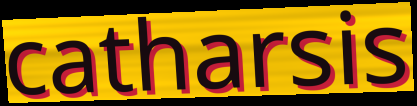
catharsis